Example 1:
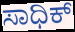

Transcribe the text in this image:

ಸಾಧಿಕ್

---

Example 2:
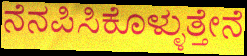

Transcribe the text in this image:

ನೆನಪಿಸಿಕೊಳ್ಳುತ್ತೇನೆ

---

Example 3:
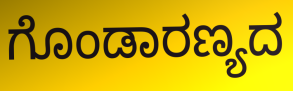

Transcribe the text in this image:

ಗೊಂಡಾರಣ್ಯದ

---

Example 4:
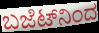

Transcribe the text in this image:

ಬಜೆಟ್‌ನಿಂದ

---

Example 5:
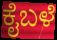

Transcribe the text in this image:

ಕೈಬಳೆ